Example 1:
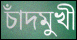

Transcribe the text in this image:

চাঁদমুখী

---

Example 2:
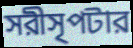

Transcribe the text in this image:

সরীসৃপটার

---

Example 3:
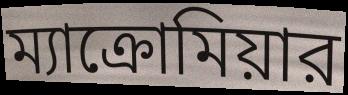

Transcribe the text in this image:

ম্যাক্রোমিয়ার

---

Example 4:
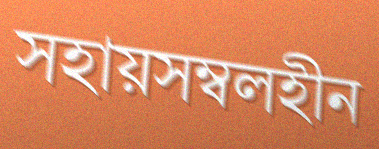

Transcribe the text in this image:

সহায়সম্বলহীন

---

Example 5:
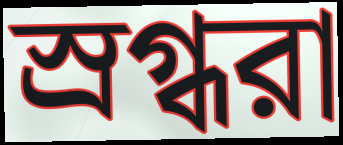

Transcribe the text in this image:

স্রগ্ধরা